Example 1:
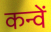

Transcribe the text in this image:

कन्वें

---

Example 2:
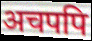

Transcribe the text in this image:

अचपपि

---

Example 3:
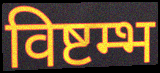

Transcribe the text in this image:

विष्टम्भ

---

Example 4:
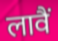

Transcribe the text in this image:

लावैं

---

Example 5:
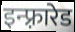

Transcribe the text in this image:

इन्फ़्रारेड